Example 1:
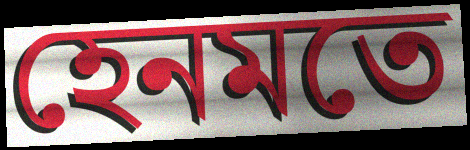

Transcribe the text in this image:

হেনমতে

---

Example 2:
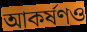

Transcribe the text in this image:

আকর্ষণও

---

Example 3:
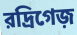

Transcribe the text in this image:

রদ্রিগেজ়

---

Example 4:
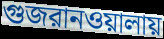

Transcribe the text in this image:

গুজরানওয়ালায়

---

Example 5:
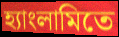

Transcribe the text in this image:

হ্যাংলামিতে